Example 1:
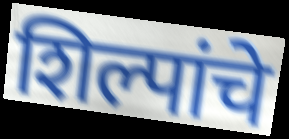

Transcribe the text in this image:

शिल्पांचे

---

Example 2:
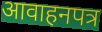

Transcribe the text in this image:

आवाहनपत्र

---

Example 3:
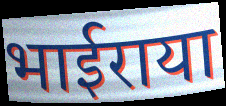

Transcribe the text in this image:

भाईराया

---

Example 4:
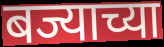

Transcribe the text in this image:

बज्याच्या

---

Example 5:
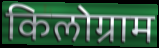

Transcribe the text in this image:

किलोग्राम